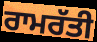
ਰਾਮਰੱਤੀ